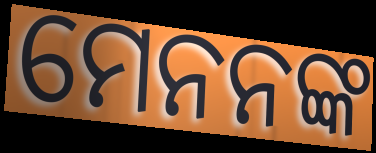
ମେନନଙ୍କ